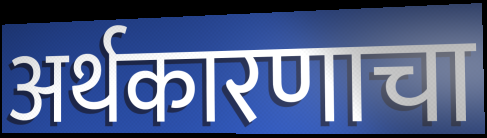
अर्थकारणाचा